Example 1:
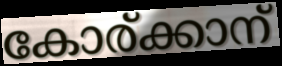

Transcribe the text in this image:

കോര്ക്കാന്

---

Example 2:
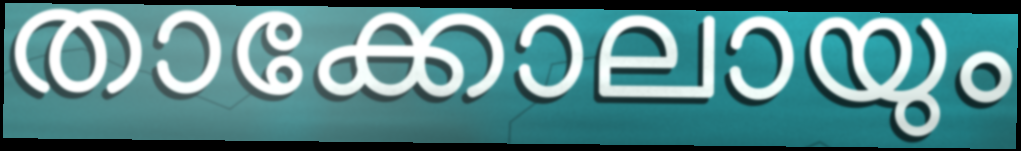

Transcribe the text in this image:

താക്കോലായും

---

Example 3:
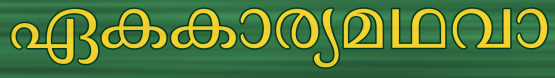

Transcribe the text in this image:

ഏകകാര്യമഥവാ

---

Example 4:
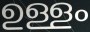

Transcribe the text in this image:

ഉള്ളം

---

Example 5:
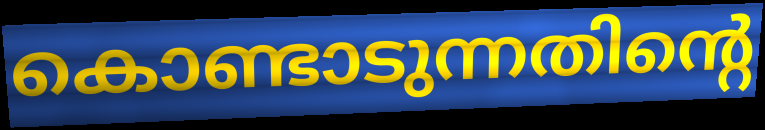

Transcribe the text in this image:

കൊണ്ടാടുന്നതിന്റെ